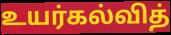
உயர்கல்வித்